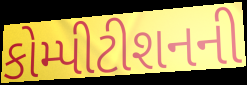
કોમ્પીટીશનની